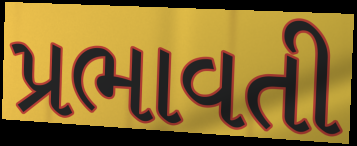
પ્રભાવતી